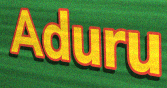
Aduru